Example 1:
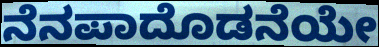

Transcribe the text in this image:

ನೆನಪಾದೊಡನೆಯೇ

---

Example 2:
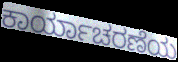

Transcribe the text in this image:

ಕಾರ್ಯಾಚರಣೆಯ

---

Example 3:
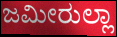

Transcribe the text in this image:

ಜಮೀರುಲ್ಲಾ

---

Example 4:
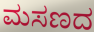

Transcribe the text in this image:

ಮಸಣದ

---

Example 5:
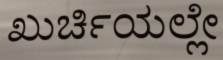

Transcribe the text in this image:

ಖುರ್ಚಿಯಲ್ಲೇ